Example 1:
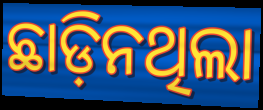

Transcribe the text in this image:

ଛାଡ଼ିନଥିଲା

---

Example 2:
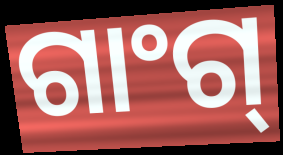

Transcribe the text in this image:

ଗାଂଗ୍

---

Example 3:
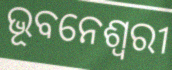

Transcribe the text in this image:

ଭୂବନେଶ୍ୱରୀ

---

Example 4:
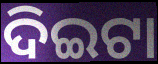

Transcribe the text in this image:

ଦିଇଟା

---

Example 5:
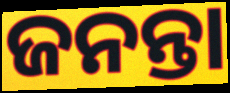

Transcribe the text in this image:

ଜନନ୍ତା